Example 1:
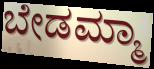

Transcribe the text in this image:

ಬೇಡಮ್ಮಾ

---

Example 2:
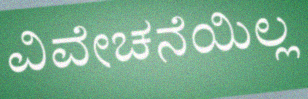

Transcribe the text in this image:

ವಿವೇಚನೆಯಿಲ್ಲ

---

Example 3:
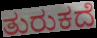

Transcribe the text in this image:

ತುರುಕದೆ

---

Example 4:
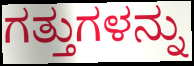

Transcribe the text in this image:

ಗತ್ತುಗಳನ್ನು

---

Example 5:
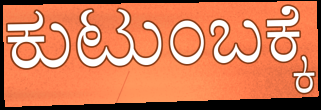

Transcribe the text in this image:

ಕುಟುಂಬಕ್ಕೆ